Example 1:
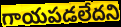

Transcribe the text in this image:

గాయపడలేదని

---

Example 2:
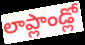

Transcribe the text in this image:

లాప్లాండ్లో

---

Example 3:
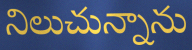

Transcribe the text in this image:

నిలుచున్నాను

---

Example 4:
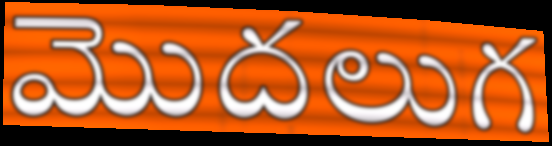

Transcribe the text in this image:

మొదలుగ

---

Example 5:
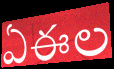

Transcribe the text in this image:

ఏఈల